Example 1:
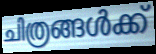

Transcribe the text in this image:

ചിത്രങ്ങൾക്ക്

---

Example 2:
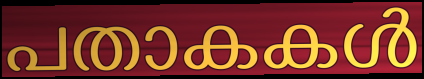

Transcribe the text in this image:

പതാകകൾ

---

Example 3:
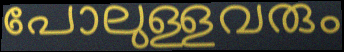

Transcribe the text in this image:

പോലുള്ളവരും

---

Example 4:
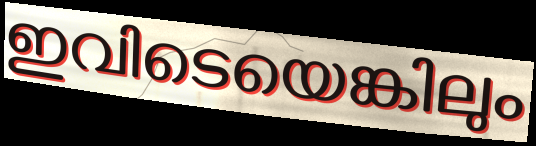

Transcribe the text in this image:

ഇവിടെയെങ്കിലും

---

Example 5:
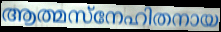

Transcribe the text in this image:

ആത്മസ്നേഹിതനായ